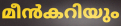
മീൻകറിയും